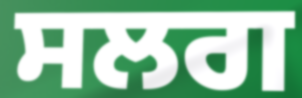
ਸਲਗ